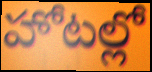
హోటల్లో